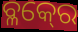
ବ୍ଳକ୍‍ରେ